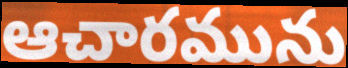
ఆచారమును